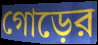
গোড়ের